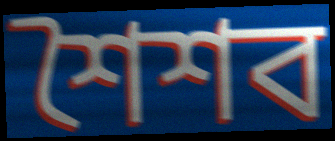
শৈশব